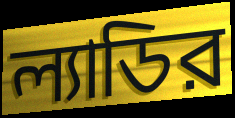
ল্যাডির